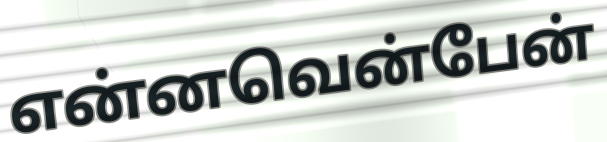
என்னவென்பேன்